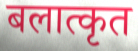
बलात्कृत